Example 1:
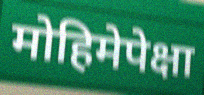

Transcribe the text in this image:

मोहिमेपेक्षा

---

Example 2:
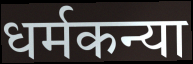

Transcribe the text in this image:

धर्मकन्या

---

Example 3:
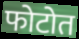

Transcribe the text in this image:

फोटोत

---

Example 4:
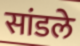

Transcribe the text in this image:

सांडले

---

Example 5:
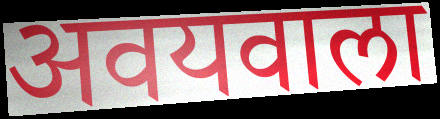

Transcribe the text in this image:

अवयवाला